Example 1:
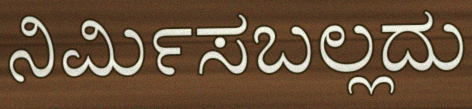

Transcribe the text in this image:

ನಿರ್ಮಿಸಬಲ್ಲದು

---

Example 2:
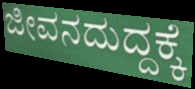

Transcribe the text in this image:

ಜೀವನದುದ್ದಕ್ಕೆ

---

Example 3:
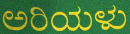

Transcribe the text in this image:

ಅರಿಯಳು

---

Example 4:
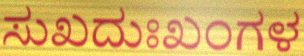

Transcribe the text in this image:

ಸುಖದುಃಖಂಗಳ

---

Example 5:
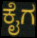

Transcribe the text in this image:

ಕೈಗ